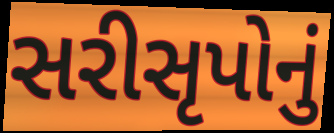
સરીસૃપોનું